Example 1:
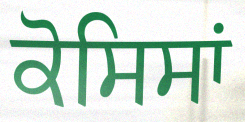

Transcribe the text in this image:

ਕੋਸਿਸਾਂ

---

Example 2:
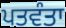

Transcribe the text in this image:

ਪਤਵੰਤਾ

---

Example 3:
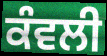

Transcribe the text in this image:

ਕੰਵਲੀ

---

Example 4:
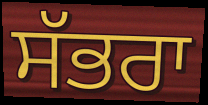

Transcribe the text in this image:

ਸੱਭਰਾ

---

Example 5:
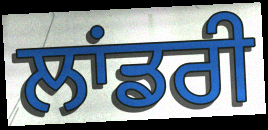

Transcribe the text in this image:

ਲਾਂਡਰੀ